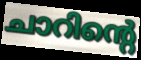
ചാറിന്റെ